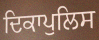
ਦਿਕਾਪੁਲਿਸ